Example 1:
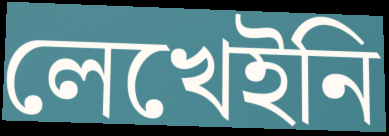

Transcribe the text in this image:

লেখেইনি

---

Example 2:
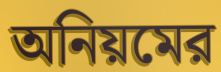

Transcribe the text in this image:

অনিয়মের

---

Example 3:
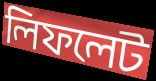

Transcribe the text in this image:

লিফলেট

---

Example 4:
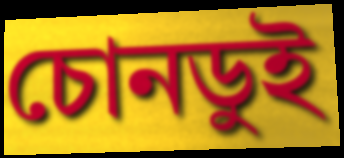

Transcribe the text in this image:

চোনডুই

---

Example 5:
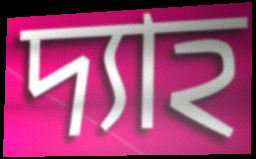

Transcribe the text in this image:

দ্যাহ